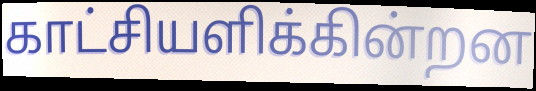
காட்சியளிக்கின்றன